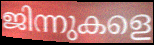
ജിന്നുകളെ